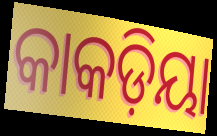
କାକଡ଼ିୟା